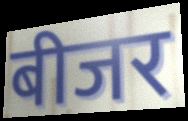
बीजर